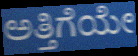
ಅತ್ತಿಗೆಯೇ